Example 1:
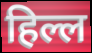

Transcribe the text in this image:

हिल्ल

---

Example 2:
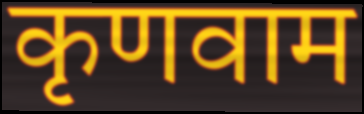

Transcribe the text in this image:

कृणवाम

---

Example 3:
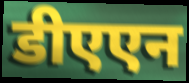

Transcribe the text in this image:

डीएएन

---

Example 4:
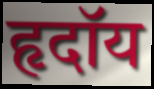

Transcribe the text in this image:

हृदॉय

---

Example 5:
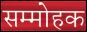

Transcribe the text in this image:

सम्मोहक